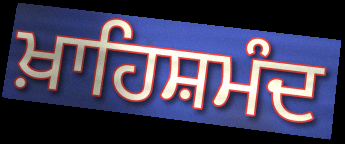
ਖ਼ਾਹਿਸ਼ਮੰਦ